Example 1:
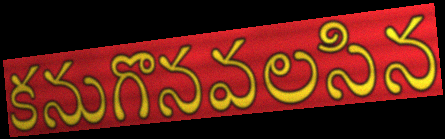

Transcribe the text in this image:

కనుగొనవలసిన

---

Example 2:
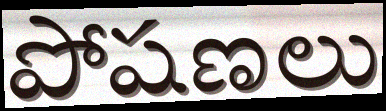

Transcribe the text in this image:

పోషణలు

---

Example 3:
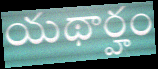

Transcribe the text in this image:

యథార్హం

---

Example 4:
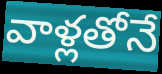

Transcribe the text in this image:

వాళ్లతోనే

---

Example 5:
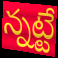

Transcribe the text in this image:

న్నట్టే